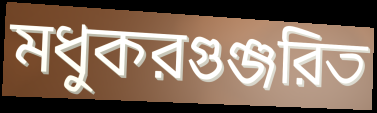
মধুকরগুঞ্জরিত